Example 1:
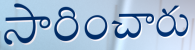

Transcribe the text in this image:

సారించారు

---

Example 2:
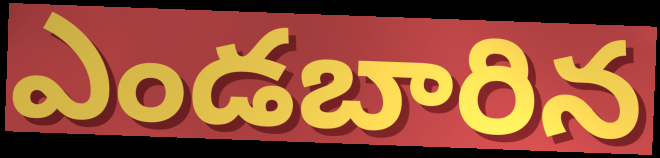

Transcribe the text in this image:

ఎండబారిన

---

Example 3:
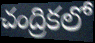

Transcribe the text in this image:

చంద్రికలో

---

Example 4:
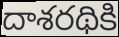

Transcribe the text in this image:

దాశరథికి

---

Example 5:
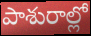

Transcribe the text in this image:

పాశురాల్లో